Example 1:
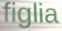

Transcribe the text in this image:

figlia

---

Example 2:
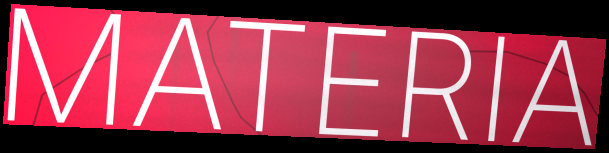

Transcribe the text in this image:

MATERIA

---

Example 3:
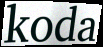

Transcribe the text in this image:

koda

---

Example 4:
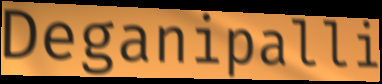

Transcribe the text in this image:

Deganipalli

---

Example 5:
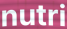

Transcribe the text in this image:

nutri